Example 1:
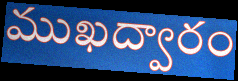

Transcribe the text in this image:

ముఖద్వారం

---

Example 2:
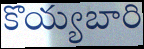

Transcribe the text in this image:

కొయ్యబారి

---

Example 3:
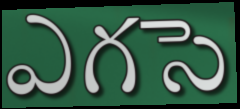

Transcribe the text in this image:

ఎగసె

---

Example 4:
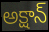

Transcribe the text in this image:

అక్షాన్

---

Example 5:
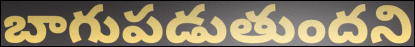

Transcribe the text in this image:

బాగుపడుతుందని